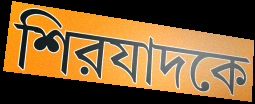
শিরযাদকে